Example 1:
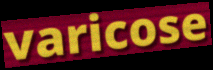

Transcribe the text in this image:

varicose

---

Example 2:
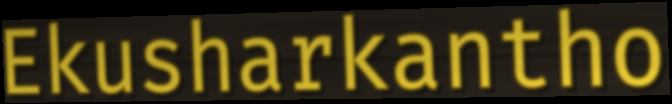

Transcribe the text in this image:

Ekusharkantho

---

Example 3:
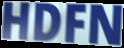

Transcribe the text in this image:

HDFN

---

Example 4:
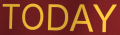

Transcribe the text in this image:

TODAY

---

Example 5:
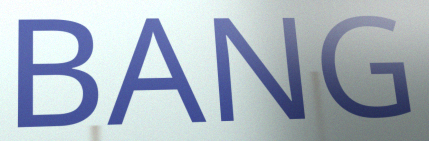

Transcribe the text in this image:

BANG